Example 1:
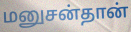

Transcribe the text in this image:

மனுசன்தான்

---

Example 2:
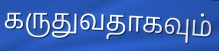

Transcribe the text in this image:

கருதுவதாகவும்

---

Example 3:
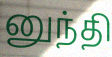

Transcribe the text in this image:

னுந்தி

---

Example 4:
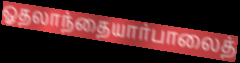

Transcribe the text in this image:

ஓதலாந்தையார்பாலைத்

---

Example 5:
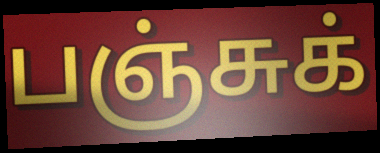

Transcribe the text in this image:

பஞ்சுக்